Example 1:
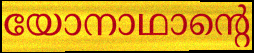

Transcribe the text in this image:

യോനാഥാന്റെ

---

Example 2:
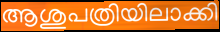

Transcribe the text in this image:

ആശുപത്രിയിലാക്കി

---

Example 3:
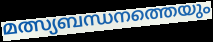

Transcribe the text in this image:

മത്സ്യബന്ധനത്തെയും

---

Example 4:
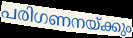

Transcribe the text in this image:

പരിഗണനയ്ക്കും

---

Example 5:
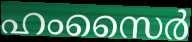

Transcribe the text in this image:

ഹംസൈർ